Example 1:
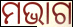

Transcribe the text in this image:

ମଭାଗ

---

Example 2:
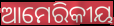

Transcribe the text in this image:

ଆମେରିକୀୟ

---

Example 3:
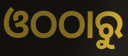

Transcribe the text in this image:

ଓଠଠାରୁ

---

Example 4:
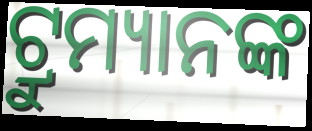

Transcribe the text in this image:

ଟ୍ରୁମ୍ୟାନଙ୍କ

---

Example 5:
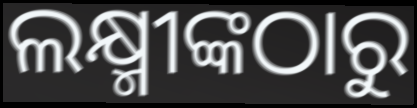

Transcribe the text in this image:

ଲକ୍ଷ୍ମୀଙ୍କଠାରୁ